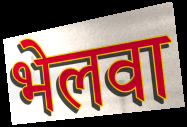
भेलवा